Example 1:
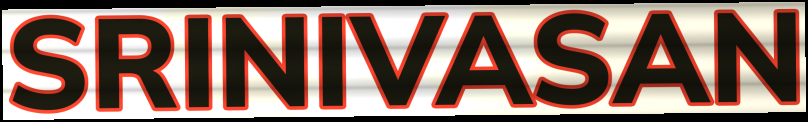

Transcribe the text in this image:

SRINIVASAN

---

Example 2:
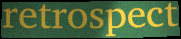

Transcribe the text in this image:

retrospect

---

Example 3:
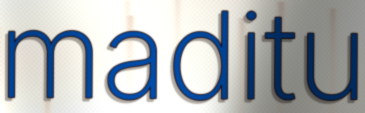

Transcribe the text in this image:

maditu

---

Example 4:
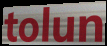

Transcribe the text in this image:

tolun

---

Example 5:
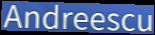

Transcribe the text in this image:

Andreescu